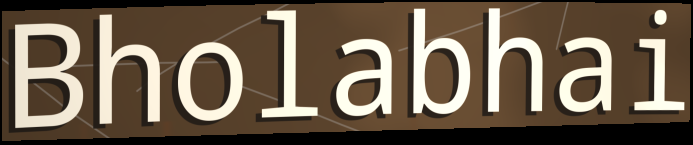
Bholabhai